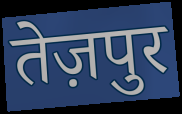
तेज़पुर